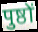
पुष्ठों